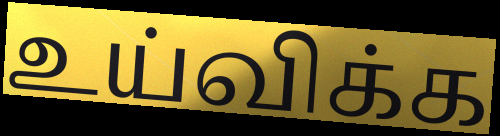
உய்விக்க